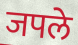
जपले